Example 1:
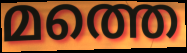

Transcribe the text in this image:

മത്തെ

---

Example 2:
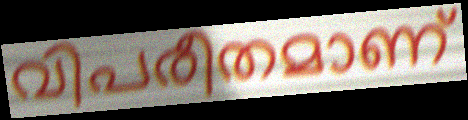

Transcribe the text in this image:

വിപരീതമാണ്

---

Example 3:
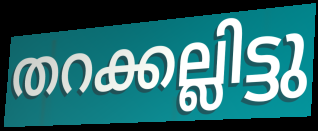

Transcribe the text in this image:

തറക്കല്ലിട്ടു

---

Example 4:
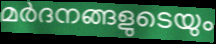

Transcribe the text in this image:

മർദനങ്ങളുടെയും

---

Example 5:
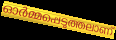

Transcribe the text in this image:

ഓർമ്മപ്പെടുത്തലാണ്